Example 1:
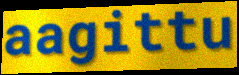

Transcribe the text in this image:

aagittu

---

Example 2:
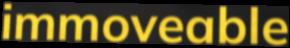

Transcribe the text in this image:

immoveable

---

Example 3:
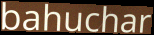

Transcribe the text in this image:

bahuchar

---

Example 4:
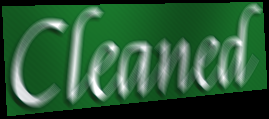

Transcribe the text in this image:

Cleaned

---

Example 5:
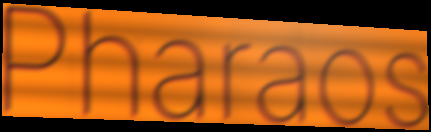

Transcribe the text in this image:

Pharaos